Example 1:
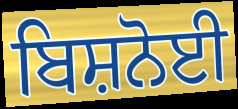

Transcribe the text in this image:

ਬਿਸ਼ਨੋਈ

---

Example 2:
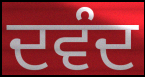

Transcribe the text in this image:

ਦਵੰਦ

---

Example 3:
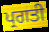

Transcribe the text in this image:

ਪ੍ਰਗਤੀ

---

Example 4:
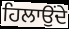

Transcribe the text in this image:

ਹਿਲਾਉਂਦੇ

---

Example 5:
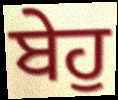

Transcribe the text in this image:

ਬੇਹੁ